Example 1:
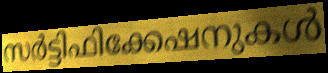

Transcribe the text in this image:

സർട്ടിഫിക്കേഷനുകൾ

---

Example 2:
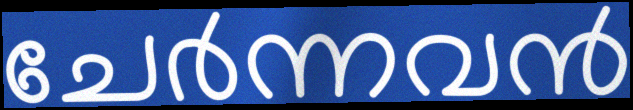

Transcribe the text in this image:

ചേർന്നവൻ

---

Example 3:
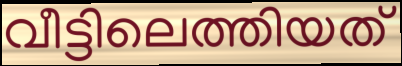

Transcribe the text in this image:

വീട്ടിലെത്തിയത്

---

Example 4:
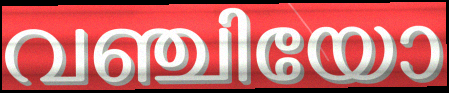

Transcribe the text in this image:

വഞ്ചിയോ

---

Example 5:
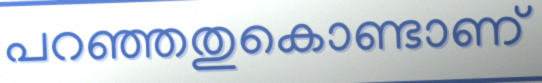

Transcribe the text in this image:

പറഞ്ഞതുകൊണ്ടാണ്